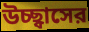
উচ্ছ্বাসের